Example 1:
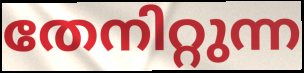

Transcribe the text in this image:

തേനിറ്റുന്ന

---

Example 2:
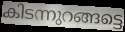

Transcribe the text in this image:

കിടന്നുറങ്ങട്ടെ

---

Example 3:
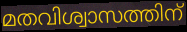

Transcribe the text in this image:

മതവിശ്വാസത്തിന്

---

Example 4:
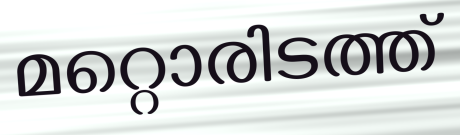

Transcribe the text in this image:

മറ്റൊരിടത്ത്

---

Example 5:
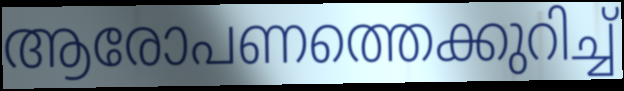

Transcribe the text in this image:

ആരോപണത്തെക്കുറിച്ച്